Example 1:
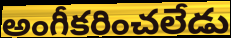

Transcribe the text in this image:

అంగీకరించలేడు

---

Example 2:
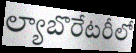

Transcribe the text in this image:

ల్యాబొరేటరీలో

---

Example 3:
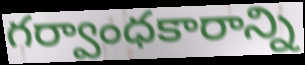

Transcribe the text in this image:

గర్వాంధకారాన్ని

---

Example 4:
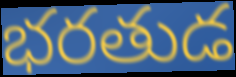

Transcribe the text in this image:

భరతుడ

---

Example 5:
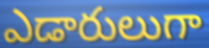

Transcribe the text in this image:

ఎడారులుగా